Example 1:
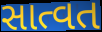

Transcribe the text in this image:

સાત્વત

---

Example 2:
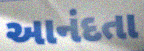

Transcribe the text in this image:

આનંદતા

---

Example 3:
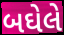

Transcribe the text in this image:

બઘેલે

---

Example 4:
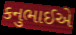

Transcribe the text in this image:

કનુભાઈએ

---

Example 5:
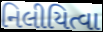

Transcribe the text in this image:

નિલીયિત્વા